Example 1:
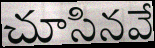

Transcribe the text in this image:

చూసినవే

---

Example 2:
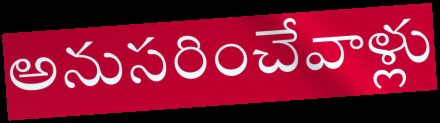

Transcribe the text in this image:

అనుసరించేవాళ్లు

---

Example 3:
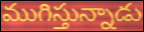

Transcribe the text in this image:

ముగిస్తున్నాడు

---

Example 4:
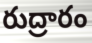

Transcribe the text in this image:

రుద్రారం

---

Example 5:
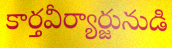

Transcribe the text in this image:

కార్తవీర్యార్జునుడి